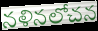
నళినలోచన